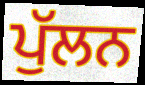
ਪੁੱਲਨ